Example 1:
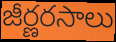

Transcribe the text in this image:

జీర్ణరసాలు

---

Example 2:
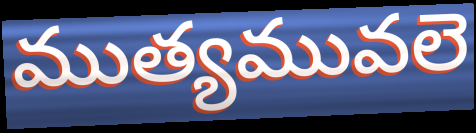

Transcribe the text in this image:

ముత్యమువలె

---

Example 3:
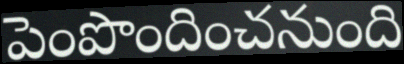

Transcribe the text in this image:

పెంపొందించనుంది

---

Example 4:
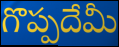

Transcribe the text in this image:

గొప్పదేమీ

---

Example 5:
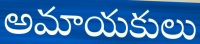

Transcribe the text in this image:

అమాయకులు